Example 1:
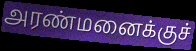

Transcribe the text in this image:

அரண்மனைக்குச்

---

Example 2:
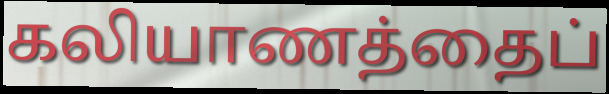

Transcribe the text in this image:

கலியாணத்தைப்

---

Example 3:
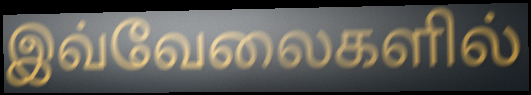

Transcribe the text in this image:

இவ்வேலைகளில்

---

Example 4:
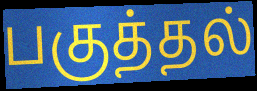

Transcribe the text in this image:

பகுத்தல்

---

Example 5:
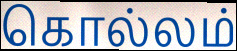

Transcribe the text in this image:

கொல்லம்